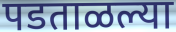
पडताळल्या